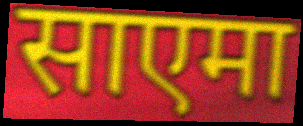
साएमा